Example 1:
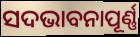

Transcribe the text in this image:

ସଦଭାବନାପୂର୍ଣ୍ଣ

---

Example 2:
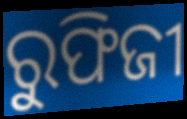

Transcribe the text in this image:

ରୁଫିଜୀ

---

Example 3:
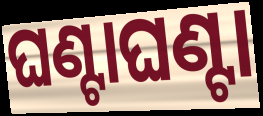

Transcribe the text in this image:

ଘଣ୍ଟାଘଣ୍ଟା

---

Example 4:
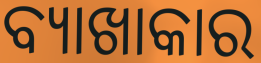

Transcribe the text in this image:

ବ୍ୟାଖାକାର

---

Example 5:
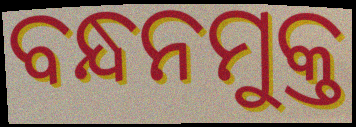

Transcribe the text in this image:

ବନ୍ଧନମୁକ୍ତ